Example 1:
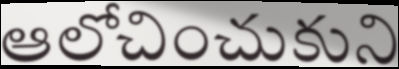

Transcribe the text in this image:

ఆలోచించుకుని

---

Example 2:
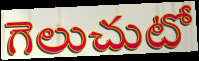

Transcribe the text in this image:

గెలుచుటో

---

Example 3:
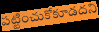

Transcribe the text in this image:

పట్టించుకోకూడదని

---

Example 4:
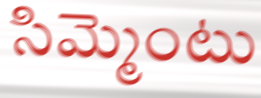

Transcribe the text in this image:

సిమ్మెంటు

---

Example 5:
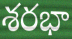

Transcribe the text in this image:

శరభా